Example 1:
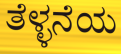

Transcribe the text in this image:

ತೆಳ್ಳನೆಯ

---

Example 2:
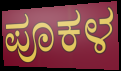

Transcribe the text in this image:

ಪೂಕಳ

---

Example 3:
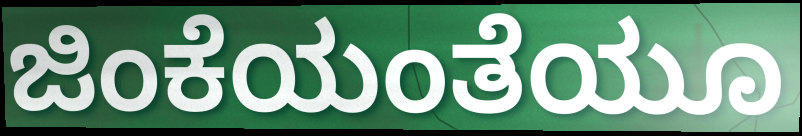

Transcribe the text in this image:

ಜಿಂಕೆಯಂತೆಯೂ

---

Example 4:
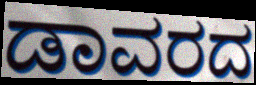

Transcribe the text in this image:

ಡಾವರದ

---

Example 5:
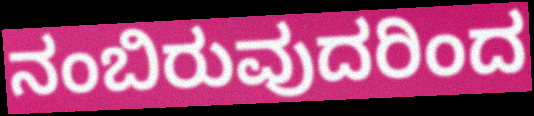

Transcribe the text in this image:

ನಂಬಿರುವುದರಿಂದ